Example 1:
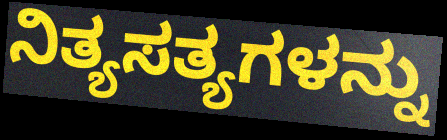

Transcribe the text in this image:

ನಿತ್ಯಸತ್ಯಗಳನ್ನು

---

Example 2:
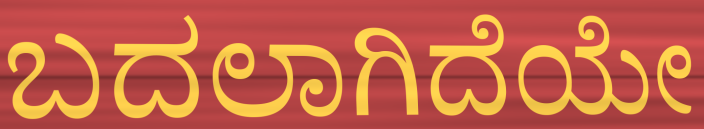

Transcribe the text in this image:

ಬದಲಾಗಿದೆಯೇ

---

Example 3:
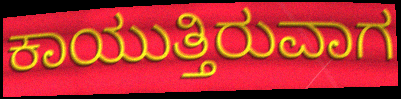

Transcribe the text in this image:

ಕಾಯುತ್ತಿರುವಾಗ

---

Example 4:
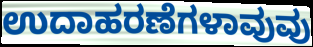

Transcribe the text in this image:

ಉದಾಹರಣೆಗಳಾವುವು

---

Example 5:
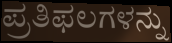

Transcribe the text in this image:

ಪ್ರತಿಫಲಗಳನ್ನು